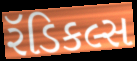
રૅડિકલ્સ